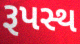
રૂપસ્થ